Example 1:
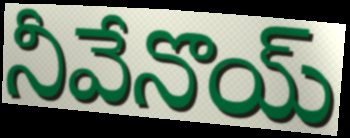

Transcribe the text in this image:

నీవేనొయ్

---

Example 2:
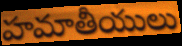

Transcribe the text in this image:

హమాతీయులు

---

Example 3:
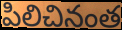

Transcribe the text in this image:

పిలిచినంత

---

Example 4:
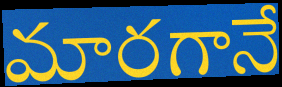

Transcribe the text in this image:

మారగానే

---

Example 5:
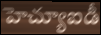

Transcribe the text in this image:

హెచ్యూఐడీ